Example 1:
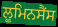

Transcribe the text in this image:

ਲੂਮਿਨਸੈਂਸ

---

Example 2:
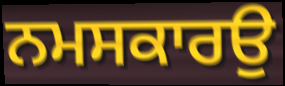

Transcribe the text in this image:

ਨਮਸਕਾਰਉ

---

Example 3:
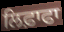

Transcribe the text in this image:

ਲਿਫ਼ਾਫਾ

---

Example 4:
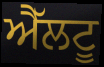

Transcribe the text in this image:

ਐੱਲਟੂ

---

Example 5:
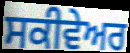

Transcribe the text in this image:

ਸਕੀਵੇਅਰ